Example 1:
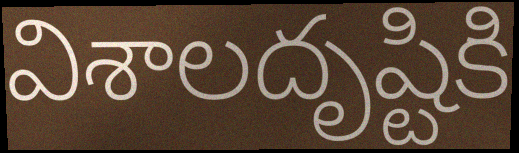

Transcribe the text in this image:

విశాలదృష్టికి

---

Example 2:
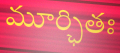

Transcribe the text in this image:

మూర్ఛితః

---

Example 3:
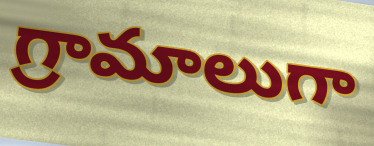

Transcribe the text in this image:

గ్రామాలుగా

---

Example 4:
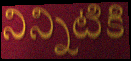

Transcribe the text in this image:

నిన్నిటికి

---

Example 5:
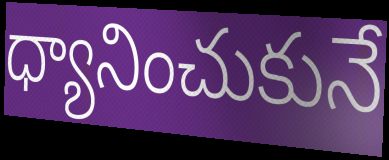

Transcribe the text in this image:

ధ్యానించుకునే